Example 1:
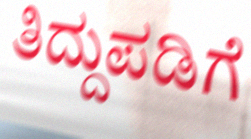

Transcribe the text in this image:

ತಿದ್ದುಪಡಿಗೆ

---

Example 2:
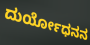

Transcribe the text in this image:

ದುರ್ಯೋಧನನ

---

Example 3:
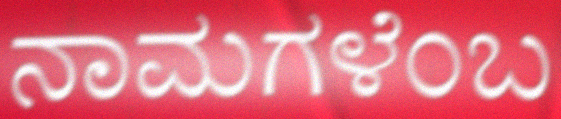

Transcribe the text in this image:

ನಾಮಗಳೆಂಬ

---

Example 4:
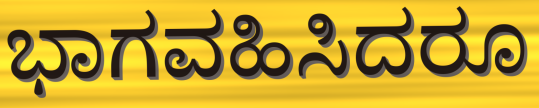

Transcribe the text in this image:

ಭಾಗವಹಿಸಿದರೂ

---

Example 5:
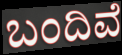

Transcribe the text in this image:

ಬಂದಿವೆ